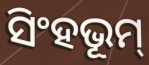
ସିଂହଭୂମ୍